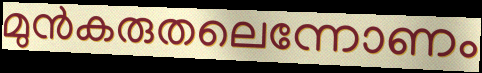
മുൻകരുതലെന്നോണം